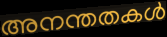
അനന്തതകൾ